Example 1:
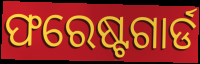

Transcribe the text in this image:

ଫରେଷ୍ଟଗାର୍ଡ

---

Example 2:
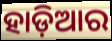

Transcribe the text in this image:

ହାଡ଼ିଆର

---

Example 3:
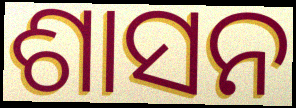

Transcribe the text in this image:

ଶାସନ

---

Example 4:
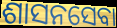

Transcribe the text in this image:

ଶାସନସେବା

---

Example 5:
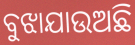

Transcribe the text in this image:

ବୁଝାଯାଉଅଛି